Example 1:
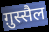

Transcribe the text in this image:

ग़ुस्सैल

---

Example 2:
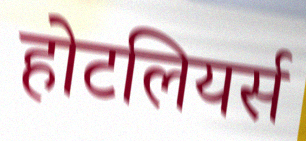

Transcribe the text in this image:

होटलियर्स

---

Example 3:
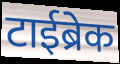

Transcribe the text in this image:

टाईब्रेक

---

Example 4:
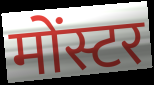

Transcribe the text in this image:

मोंस्टर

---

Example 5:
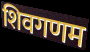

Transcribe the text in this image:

शिवगणम